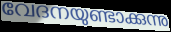
വേദനയുണ്ടാക്കുന്നു